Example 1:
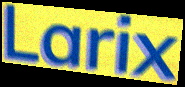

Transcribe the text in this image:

Larix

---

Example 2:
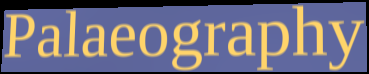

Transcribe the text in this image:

Palaeography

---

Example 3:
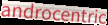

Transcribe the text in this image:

androcentric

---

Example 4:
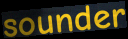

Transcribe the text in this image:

sounder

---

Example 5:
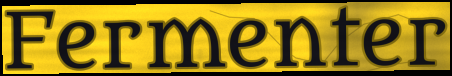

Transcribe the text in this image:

Fermenter